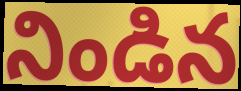
నిండిన